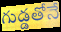
గుడ్డతోనే